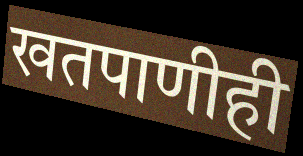
खतपाणीही